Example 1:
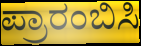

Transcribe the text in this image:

ಪ್ರಾರಂಬಿಸಿ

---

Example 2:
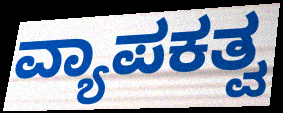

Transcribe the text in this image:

ವ್ಯಾಪಕತ್ವ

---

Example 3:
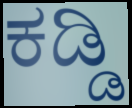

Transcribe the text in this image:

ಕಡ್ಡಿ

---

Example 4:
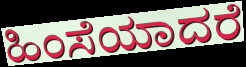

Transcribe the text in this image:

ಹಿಂಸೆಯಾದರೆ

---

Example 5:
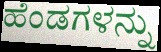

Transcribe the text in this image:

ಹೆಂಡಗಳನ್ನು